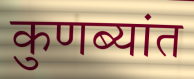
कुणब्यांत